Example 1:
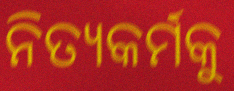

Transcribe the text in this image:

ନିତ୍ୟକର୍ମକୁ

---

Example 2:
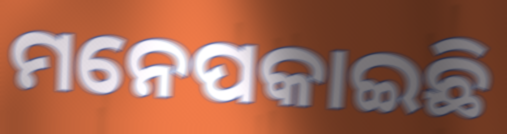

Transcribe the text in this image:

ମନେପକାଇଛି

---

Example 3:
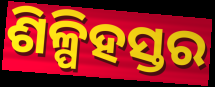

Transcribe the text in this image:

ଶିଳ୍ପିହସ୍ତର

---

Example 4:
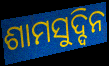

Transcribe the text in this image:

ଶାମସୁଦ୍ଦିନ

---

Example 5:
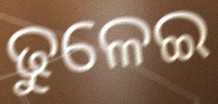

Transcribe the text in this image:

ଢୁଳେଇ